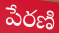
పేరణి